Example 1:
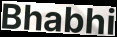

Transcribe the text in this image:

Bhabhi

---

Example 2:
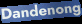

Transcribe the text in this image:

Dandenong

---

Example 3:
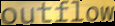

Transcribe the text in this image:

outflow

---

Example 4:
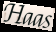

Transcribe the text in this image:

Haas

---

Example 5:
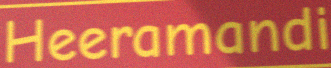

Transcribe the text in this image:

Heeramandi